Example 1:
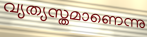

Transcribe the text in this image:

വ്യത്യസ്തമാണെന്നു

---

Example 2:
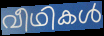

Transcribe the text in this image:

വീഥികൾ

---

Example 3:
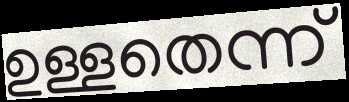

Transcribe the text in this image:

ഉള്ളതെന്ന്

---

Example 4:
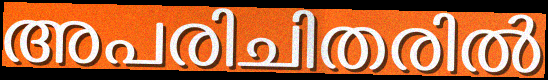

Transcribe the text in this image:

അപരിചിതരിൽ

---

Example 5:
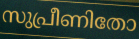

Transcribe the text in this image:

സുപ്രീണിതോ